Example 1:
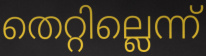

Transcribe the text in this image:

തെറ്റില്ലെന്ന്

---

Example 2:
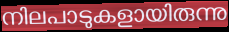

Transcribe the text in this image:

നിലപാടുകളായിരുന്നു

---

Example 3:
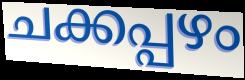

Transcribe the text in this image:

ചക്കപ്പഴം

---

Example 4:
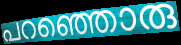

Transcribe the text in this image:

പറഞ്ഞൊരു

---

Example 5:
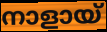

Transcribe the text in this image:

നാളായ്